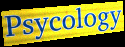
Psycology